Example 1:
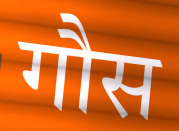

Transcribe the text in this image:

गौस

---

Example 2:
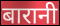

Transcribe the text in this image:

बारानी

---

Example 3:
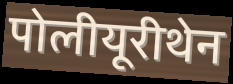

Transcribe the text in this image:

पोलीयूरीथेन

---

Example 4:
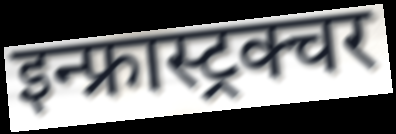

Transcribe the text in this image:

इन्फ्रास्ट्रक्चर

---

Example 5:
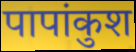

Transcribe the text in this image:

पापांकुश